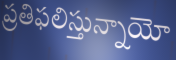
ప్రతిఫలిస్తున్నాయో